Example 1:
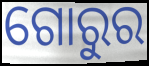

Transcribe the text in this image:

ଗୋରୁର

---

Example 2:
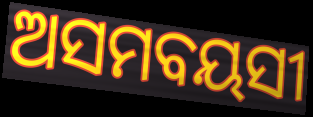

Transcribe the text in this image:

ଅସମବୟସୀ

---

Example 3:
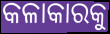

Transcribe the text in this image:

କଳାକାରକୁ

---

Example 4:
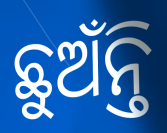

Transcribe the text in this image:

ଛୁଅଁନ୍ତି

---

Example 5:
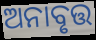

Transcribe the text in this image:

ଅନାବୃତ୍ତ